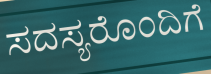
ಸದಸ್ಯರೊಂದಿಗೆ